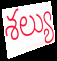
శల్యు